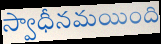
స్వాధీనమయింది